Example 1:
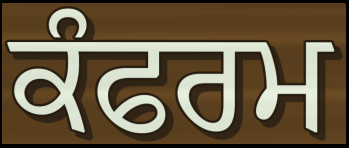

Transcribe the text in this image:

ਕੰਫਰਮ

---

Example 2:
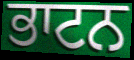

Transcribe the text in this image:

ਭਾਟਨ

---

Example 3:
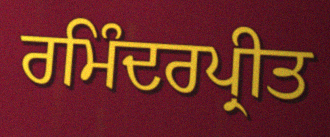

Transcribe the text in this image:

ਰਮਿੰਦਰਪ੍ਰੀਤ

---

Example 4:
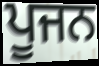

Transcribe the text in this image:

ਪੂਜਨ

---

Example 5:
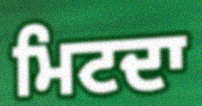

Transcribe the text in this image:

ਮਿਟਦਾ